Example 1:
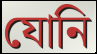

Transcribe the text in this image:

যোনি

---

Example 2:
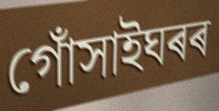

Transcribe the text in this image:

গোঁসাইঘৰৰ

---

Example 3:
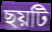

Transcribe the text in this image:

ছয়টি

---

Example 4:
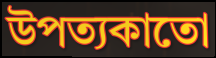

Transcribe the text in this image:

উপত্যকাতো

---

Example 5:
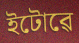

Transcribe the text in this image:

ইটোৱে